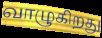
வாழுகிறது